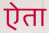
ऐता